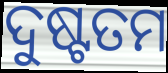
ଦୁଷ୍ଟତମ